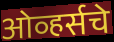
ओव्हर्सचे